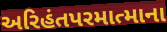
અરિહંતપરમાત્માના